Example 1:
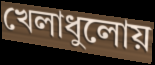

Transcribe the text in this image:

খেলাধুলোয়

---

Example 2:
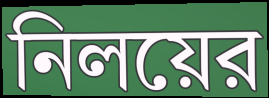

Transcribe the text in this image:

নিলয়ের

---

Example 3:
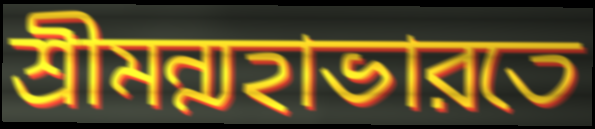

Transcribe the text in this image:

শ্রীমন্মহাভারতে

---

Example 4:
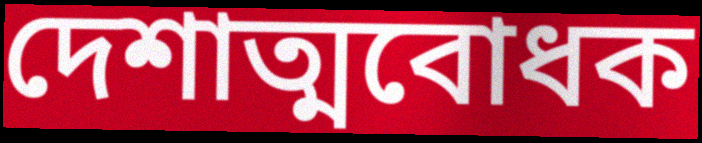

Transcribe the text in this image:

দেশাত্মবোধক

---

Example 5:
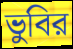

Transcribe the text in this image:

ভুবির